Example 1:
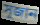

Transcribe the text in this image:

সুজান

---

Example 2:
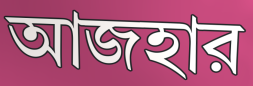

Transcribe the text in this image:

আজহার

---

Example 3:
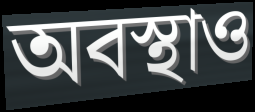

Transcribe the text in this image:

অবস্থাও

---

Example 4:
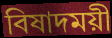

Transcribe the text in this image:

বিষাদময়ী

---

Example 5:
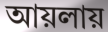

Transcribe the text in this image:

আয়লায়